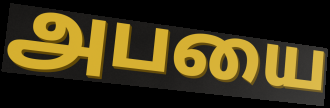
அபயை